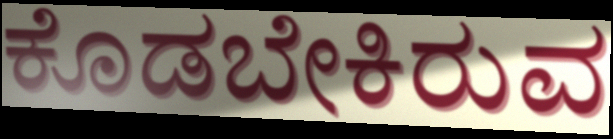
ಕೊಡಬೇಕಿರುವ